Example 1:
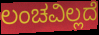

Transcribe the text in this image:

ಲಂಚವಿಲ್ಲದೆ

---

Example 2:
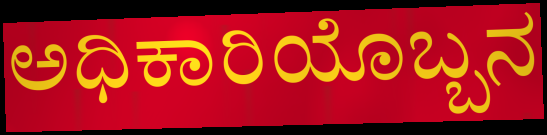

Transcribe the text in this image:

ಅಧಿಕಾರಿಯೊಬ್ಬನ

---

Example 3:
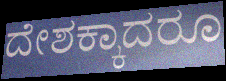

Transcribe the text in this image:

ದೇಶಕ್ಕಾದರೂ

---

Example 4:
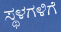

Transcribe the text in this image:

ಸ್ಥಳಗಳಿಗೆ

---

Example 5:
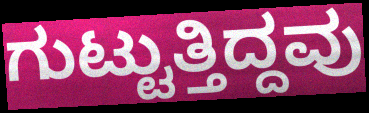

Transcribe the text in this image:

ಗುಟ್ಟುತ್ತಿದ್ದವು